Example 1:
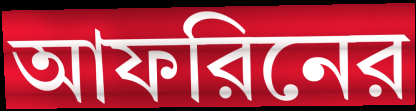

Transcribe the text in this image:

আফরিনের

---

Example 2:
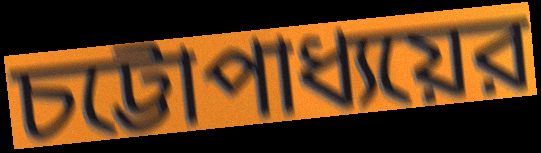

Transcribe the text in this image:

চট্টোপাধ্যয়ের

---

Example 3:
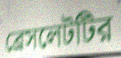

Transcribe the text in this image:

ব্রেসলেটটির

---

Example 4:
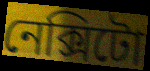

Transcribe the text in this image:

নেক্সিটো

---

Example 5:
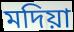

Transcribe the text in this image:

মদিয়া